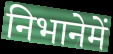
निभानेमें